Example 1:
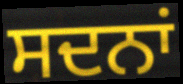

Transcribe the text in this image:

ਸਦਨਾਂ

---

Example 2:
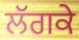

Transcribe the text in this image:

ਲੱਗਕੇ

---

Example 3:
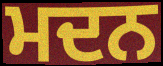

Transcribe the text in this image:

ਮਦਨ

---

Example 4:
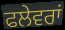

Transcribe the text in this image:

ਫਲੇਵਰਾਂ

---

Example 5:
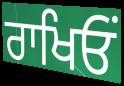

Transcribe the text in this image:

ਰਾਖਿਓਂ